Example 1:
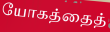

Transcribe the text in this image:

யோகத்தைத்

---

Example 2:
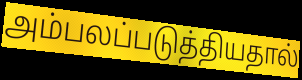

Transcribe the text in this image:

அம்பலப்படுத்தியதால்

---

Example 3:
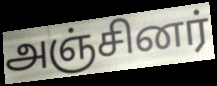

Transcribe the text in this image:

அஞ்சினர்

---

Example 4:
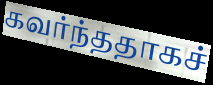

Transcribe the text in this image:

கவர்ந்ததாகச்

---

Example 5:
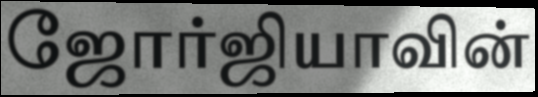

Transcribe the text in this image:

ஜோர்ஜியாவின்